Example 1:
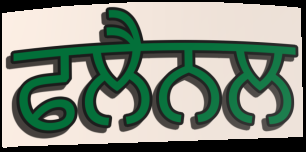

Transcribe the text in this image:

ਫਲੈਨਲ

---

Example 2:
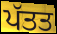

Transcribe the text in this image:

ਪੱਤਤ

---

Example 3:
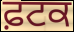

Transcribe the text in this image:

ਫ਼ਟਕ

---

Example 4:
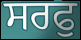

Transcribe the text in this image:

ਸਰਫੁ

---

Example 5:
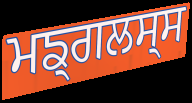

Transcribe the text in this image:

ਮਙ੍ਗਲਸ੍ਸ